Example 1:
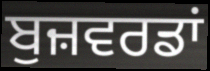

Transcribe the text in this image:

ਬੁਜ਼ਵਰਡਾਂ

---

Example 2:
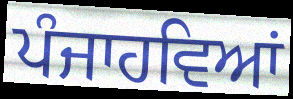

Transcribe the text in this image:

ਪੰਜਾਹਵਿਆਂ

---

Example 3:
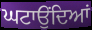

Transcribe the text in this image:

ਘਟਾਉਂਦਿਆਂ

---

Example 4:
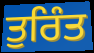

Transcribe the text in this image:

ਤੁਰਿੰਤ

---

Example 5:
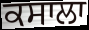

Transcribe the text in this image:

ਕਸਾਲਾ